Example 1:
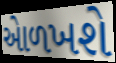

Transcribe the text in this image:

એાળખશે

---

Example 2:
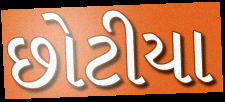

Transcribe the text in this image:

છોટીયા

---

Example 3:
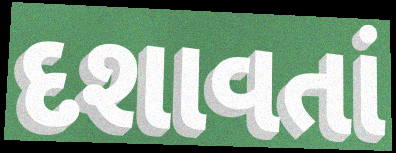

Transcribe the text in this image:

દશાવતાં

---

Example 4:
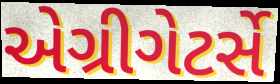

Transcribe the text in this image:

એગ્રીગેટર્સે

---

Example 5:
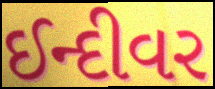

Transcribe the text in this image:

ઈન્દીવર